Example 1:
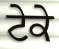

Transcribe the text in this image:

ਟੇਕੇ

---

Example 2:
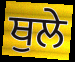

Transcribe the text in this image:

ਥੁਲੇ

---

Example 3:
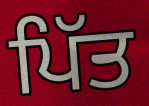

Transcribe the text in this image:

ਪਿੱਤ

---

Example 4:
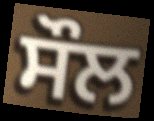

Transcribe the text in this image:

ਸੌਲ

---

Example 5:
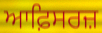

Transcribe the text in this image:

ਆਫ਼ਿਸਰਜ਼